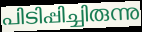
പിടിപ്പിച്ചിരുന്നു